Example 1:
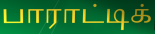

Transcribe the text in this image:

பாராட்டிக்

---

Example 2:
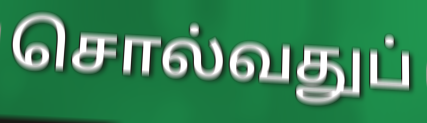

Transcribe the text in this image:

சொல்வதுப்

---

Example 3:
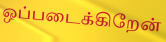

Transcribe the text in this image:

ஒப்படைக்கிறேன்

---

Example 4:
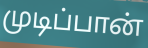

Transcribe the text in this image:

முடிப்பான்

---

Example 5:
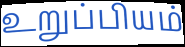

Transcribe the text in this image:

உறுப்பியம்